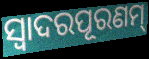
ସ୍ଵାଦରପୂରଣମ୍